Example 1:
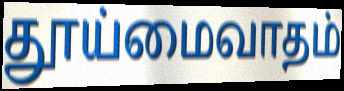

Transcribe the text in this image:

தூய்மைவாதம்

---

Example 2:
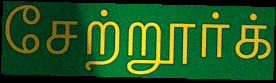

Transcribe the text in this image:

சேற்றூர்க்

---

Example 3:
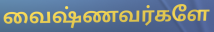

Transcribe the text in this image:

வைஷ்ணவர்களே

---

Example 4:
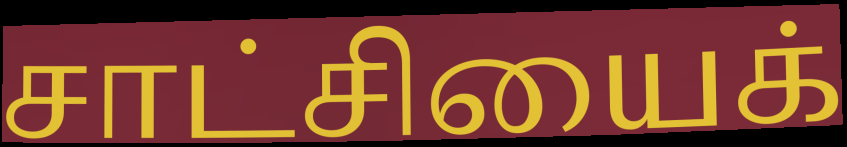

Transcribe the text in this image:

சாட்சியைக்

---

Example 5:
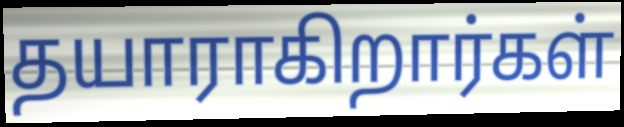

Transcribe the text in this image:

தயாராகிறார்கள்